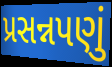
પ્રસન્નપણું